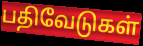
பதிவேடுகள்